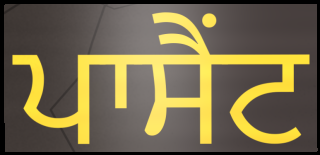
ਪਾਸੈਂਟ